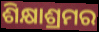
ଶିକ୍ଷାଶ୍ରମର